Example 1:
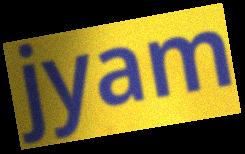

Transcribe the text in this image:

jyam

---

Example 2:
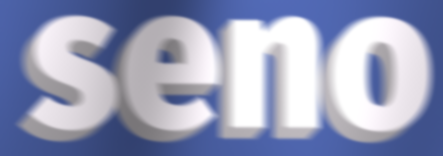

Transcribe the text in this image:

seno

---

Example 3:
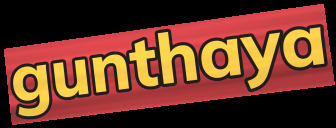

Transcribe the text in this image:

gunthaya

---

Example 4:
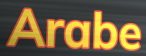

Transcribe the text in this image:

Arabe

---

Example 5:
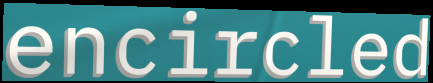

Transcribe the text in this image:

encircled